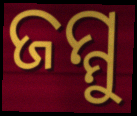
ଜମ୍ମୁ